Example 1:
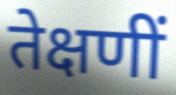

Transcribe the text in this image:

तेक्षणीं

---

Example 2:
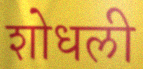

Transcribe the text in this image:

शोधली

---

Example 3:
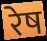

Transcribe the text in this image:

रेष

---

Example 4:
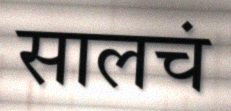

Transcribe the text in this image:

सालचं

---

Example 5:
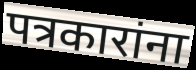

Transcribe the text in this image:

पत्रकारांना